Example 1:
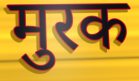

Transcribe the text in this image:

मुरक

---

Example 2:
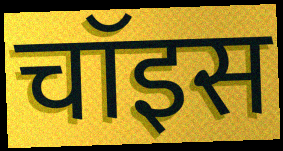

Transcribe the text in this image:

चॉइस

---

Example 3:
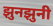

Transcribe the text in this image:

झुनझुनी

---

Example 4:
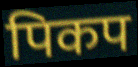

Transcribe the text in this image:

पिकप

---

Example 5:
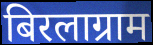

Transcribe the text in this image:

बिरलाग्राम